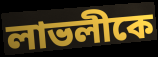
লাভলীকে